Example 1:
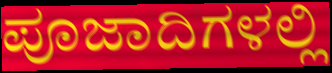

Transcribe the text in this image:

ಪೂಜಾದಿಗಳಲ್ಲಿ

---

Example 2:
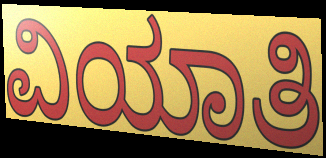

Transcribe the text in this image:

ವಿಯಾತಿ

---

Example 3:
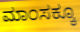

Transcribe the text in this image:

ಮಾಂಸಕ್ಕೂ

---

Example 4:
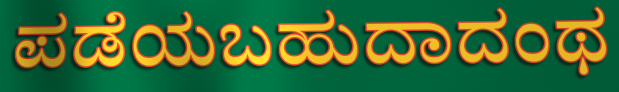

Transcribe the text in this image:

ಪಡೆಯಬಹುದಾದಂಥ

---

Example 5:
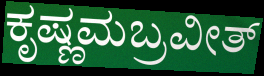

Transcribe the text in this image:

ಕೃಷ್ಣಮಬ್ರವೀತ್